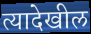
त्यादेखील